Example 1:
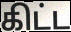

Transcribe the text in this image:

கிட்ட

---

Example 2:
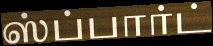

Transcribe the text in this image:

ஸ்ப்பார்ட்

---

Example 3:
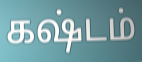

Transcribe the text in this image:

கஷ்டம்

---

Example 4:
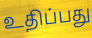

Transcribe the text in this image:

உதிப்பது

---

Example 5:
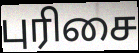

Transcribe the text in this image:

புரிசை